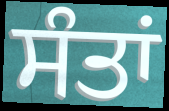
ਸੰਤਾਂ